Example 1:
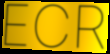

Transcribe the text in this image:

ECR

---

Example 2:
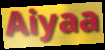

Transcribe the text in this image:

Aiyaa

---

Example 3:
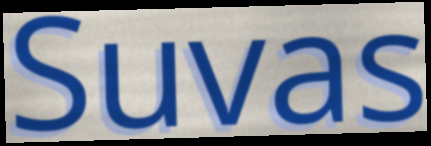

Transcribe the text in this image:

Suvas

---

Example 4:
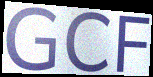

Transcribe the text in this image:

GCF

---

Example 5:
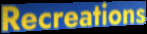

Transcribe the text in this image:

Recreations